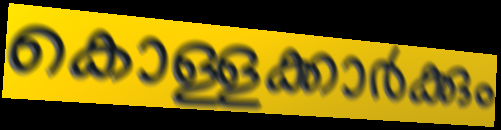
കൊള്ളക്കാർക്കും